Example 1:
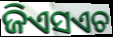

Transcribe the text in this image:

ଜିଏସଏଚ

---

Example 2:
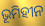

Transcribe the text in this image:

ଭୂମିହୀନ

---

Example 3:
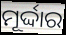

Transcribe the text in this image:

ମୂର୍ଦ୍ଦାର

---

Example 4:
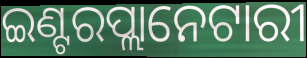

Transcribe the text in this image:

ଇଣ୍ଟରପ୍ଲାନେଟାରୀ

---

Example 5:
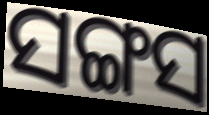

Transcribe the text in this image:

ସଙ୍ଗସ